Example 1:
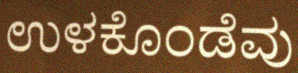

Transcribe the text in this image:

ಉಳಕೊಂಡೆವು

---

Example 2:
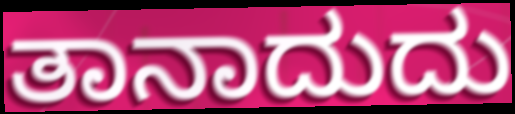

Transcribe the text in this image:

ತಾನಾದುದು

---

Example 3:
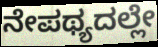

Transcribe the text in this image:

ನೇಪಥ್ಯದಲ್ಲೇ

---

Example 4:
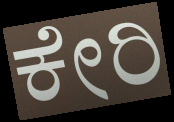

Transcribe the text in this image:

ಕೇರಿ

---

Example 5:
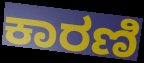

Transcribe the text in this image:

ಕಾರಣಿ